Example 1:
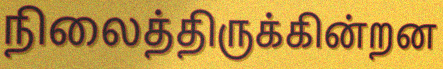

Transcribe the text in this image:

நிலைத்திருக்கின்றன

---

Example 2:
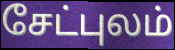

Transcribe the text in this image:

சேட்புலம்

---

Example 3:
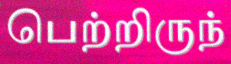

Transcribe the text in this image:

பெற்றிருந்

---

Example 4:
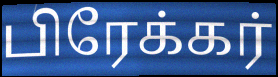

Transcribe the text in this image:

பிரேக்கர்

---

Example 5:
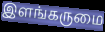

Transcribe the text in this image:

இளங்கருமை